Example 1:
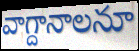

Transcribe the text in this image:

వాగ్దానాలనూ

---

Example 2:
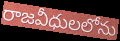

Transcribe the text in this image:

రాజవీధులలోను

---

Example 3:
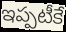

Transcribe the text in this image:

ఇప్పటీకే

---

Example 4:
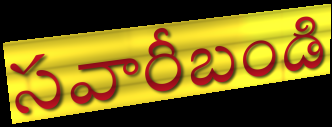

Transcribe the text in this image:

సవారీబండి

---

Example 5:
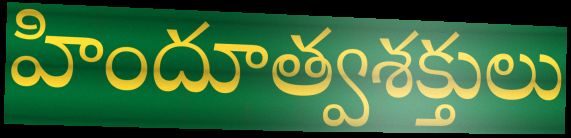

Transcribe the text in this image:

హిందూత్వశక్తులు